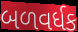
બળવર્ધક